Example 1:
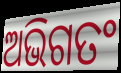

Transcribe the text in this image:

ଅଭିଗତଂ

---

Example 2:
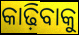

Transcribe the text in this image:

କାଢ଼ିବାକୁ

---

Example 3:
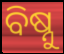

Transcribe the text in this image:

ବିଷ୍ନୁ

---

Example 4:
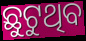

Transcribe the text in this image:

ଛୁଟୁଥିବ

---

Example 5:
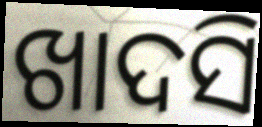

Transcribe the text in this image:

ଖାଦସି